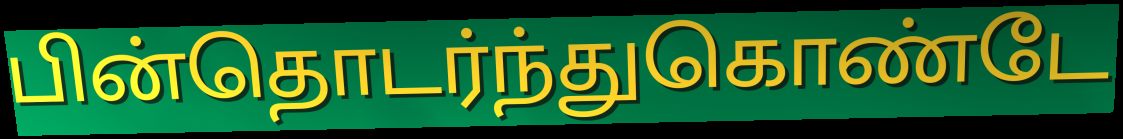
பின்தொடர்ந்துகொண்டே